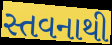
સ્તવનાથી